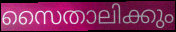
സൈതാലിക്കും